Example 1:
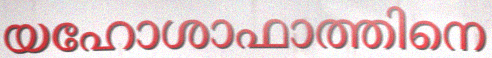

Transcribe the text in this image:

യഹോശാഫാത്തിനെ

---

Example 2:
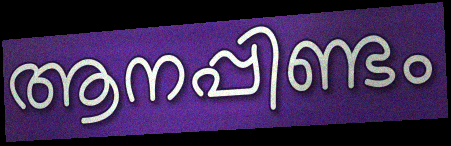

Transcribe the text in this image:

ആനപ്പിണ്ടം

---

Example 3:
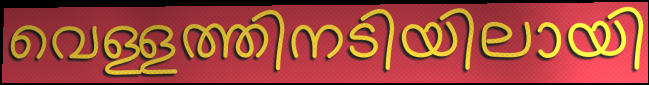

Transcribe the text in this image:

വെള്ളത്തിനടിയിലായി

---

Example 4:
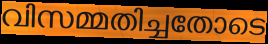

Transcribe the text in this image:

വിസമ്മതിച്ചതോടെ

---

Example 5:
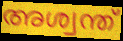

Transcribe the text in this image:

അശ്വന്ത്